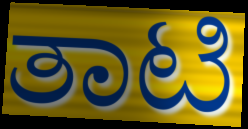
ತಾಟಿ